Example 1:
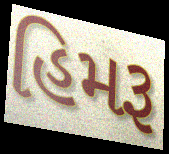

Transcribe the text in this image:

હિમરૂ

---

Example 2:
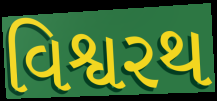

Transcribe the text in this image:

વિશ્વરથ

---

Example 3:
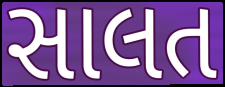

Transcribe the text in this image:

સાલત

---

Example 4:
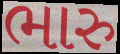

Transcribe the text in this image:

ભારુ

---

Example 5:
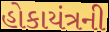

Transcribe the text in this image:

હોકાયંત્રની